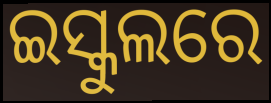
ଇସ୍କୁଲରେ